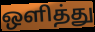
ஒளித்து